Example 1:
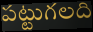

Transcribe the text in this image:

పట్టుగలది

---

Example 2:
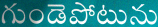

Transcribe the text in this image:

గుండెపోటును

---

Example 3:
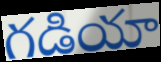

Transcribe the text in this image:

గడియా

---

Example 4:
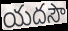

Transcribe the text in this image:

యదసౌ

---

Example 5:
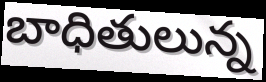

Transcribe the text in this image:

బాధితులున్న